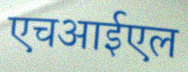
एचआईएल